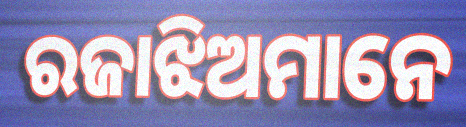
ରଜାଝିଅମାନେ